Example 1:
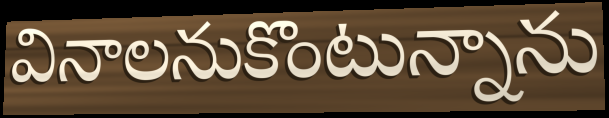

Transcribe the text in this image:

వినాలనుకొంటున్నాను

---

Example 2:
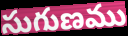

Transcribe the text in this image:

సుగుణము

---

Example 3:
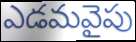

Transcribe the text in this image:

ఎడమవైపు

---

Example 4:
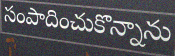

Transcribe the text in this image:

సంపాదించుకొన్నాను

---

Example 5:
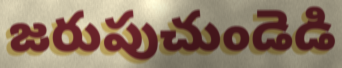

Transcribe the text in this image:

జరుపుచుండెడి